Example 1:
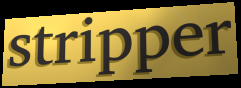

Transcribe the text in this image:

stripper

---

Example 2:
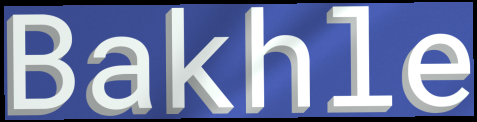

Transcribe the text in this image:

Bakhle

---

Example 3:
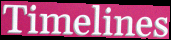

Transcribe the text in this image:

Timelines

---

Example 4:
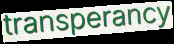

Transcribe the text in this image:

transperancy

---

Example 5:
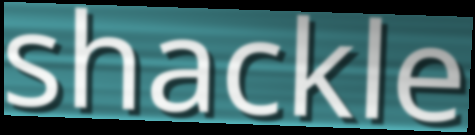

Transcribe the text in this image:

shackle